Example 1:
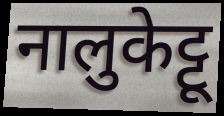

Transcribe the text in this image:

नालुकेट्टू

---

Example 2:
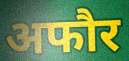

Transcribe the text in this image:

अफौर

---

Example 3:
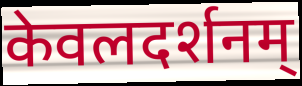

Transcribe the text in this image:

केवलदर्शनम्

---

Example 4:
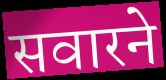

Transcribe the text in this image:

सवारने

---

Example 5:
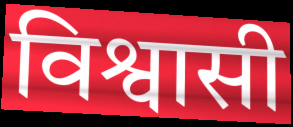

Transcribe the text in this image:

विश्वासी